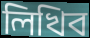
লিখিব